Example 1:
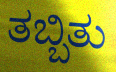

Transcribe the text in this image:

ತಬ್ಬಿತು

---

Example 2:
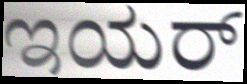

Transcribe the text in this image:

ಇಯರ್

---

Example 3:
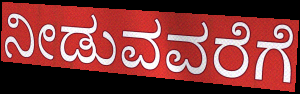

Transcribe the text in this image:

ನೀಡುವವರೆಗೆ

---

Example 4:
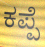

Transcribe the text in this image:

ಕಪ್ಪೆ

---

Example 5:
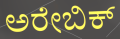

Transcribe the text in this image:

ಅರೇಬಿಕ್